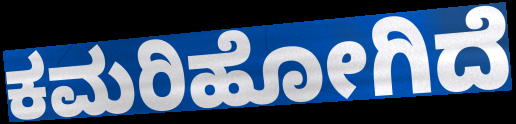
ಕಮರಿಹೋಗಿದೆ